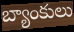
బ్యాంకులు